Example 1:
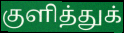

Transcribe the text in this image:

குளித்துக்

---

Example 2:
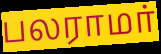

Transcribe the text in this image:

பலராமர்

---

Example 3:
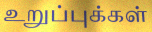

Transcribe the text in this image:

உறுப்புக்கள்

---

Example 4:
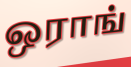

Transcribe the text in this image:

ஒராங்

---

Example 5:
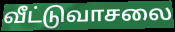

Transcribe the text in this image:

வீட்டுவாசலை